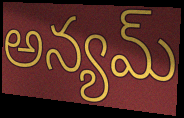
అన్యమ్